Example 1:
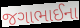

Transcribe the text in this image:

જગાભાઈના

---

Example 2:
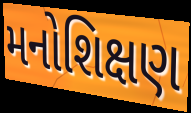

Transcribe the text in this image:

મનોશિક્ષણ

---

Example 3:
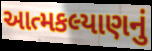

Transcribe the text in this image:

આત્મકલ્યાણનું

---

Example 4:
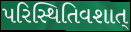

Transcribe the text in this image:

પરિસ્થિતિવશાત્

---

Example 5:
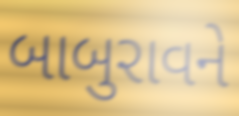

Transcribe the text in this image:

બાબુરાવને